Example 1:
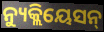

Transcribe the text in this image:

ନ୍ୟୁକ୍ଲିୟେସନ୍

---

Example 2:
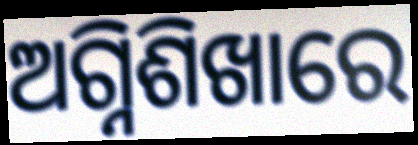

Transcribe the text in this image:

ଅଗ୍ନିଶିଖାରେ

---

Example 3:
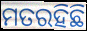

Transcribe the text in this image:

ମତରହିଛି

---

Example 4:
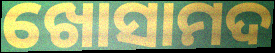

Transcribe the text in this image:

ଖୋସାମଦ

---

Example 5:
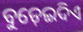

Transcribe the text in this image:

ବୁଡ଼େଇଦିଏ